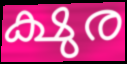
ക്ഷുര